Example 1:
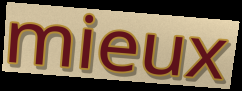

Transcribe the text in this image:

mieux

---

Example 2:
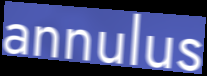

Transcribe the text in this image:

annulus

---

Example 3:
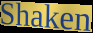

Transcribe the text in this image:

Shaken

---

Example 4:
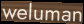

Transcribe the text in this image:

weluman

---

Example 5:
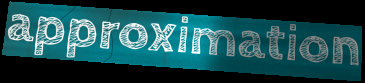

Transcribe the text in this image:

approximation